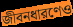
জীবনধারণেও